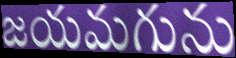
జయమగును